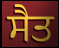
ਸੈਤ